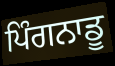
ਪਿੰਗਨਾਡੂ